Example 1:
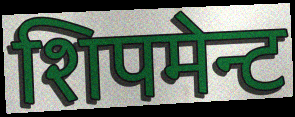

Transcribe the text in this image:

शिपमेन्ट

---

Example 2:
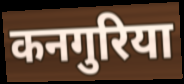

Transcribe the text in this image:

कनगुरिया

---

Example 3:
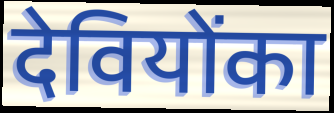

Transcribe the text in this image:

देवियोंका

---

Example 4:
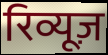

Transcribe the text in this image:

रिव्यूज़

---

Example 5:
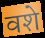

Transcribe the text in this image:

वशे